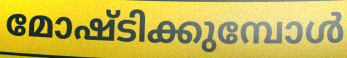
മോഷ്ടിക്കുമ്പോൾ